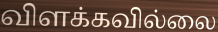
விளக்கவில்லை